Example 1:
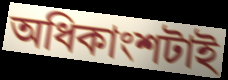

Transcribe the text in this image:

অধিকাংশটাই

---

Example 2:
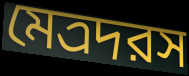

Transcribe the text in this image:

মেত্রদরস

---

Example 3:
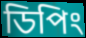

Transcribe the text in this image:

ডিপিং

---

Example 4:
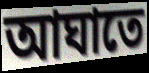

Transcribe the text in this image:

আঘাতে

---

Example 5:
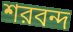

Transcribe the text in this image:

শরবন্দ